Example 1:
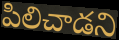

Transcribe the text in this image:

పిలిచాడని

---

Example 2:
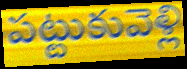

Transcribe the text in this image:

పట్టుకువెళ్లి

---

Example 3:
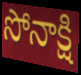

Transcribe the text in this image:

సోనాక్షి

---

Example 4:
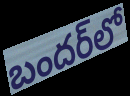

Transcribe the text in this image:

బందర్‌లో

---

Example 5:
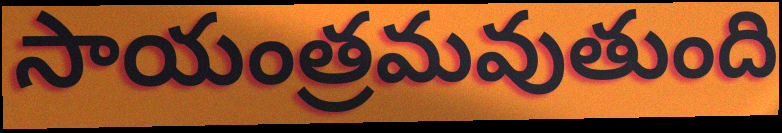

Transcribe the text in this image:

సాయంత్రమవుతుంది